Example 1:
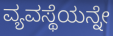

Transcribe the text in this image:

ವ್ಯವಸ್ಥೆಯನ್ನೇ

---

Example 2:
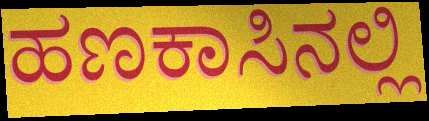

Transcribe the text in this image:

ಹಣಕಾಸಿನಲ್ಲಿ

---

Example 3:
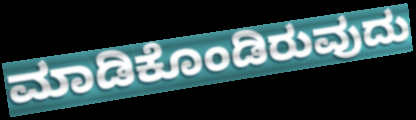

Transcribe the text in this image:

ಮಾಡಿಕೊಂಡಿರುವುದು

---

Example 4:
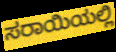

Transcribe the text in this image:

ಸರಾಯಿಯಲ್ಲಿ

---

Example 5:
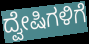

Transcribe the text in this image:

ದ್ವೇಷಿಗಳಿಗೆ